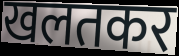
खलतकर